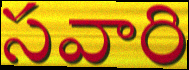
సవారి